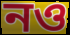
নও